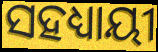
ସହଧ୍ୟାୟୀ